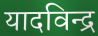
यादविन्द्र